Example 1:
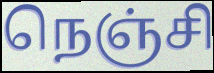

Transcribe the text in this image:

நெஞ்சி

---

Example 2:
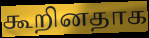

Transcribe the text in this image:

கூறினதாக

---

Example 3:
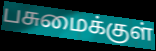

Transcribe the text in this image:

பசுமைக்குள்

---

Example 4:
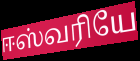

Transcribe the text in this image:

ஈஸ்வரியே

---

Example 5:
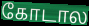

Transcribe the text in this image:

கோடால